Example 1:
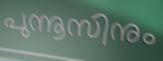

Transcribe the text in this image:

പുന്നൂസിനും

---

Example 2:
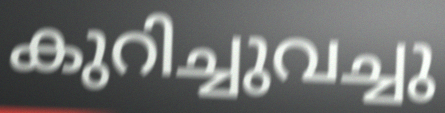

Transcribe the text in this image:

കുറിച്ചുവച്ചു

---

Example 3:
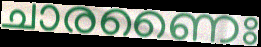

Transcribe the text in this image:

ചാരണൈഃ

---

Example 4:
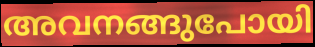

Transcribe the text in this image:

അവനങ്ങുപോയി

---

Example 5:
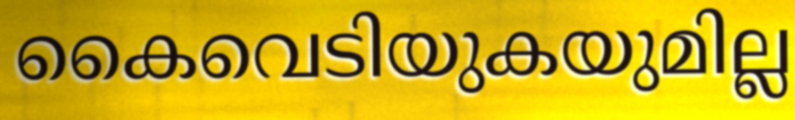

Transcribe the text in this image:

കൈവെടിയുകയുമില്ല